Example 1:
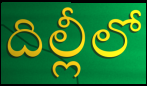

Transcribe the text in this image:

దిల్లీలో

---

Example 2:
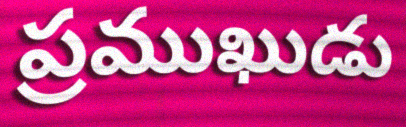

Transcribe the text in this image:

ప్రముఖుడు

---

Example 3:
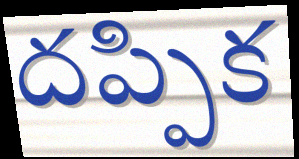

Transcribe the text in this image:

దప్పిక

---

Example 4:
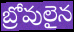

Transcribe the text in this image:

బ్రోవులైన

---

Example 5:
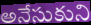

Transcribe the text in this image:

అనేసుకుని